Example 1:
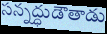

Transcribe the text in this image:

సన్నద్ధుడౌతాడు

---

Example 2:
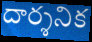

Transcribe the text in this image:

దార్శనిక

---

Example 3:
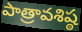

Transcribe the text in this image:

పాత్రావశిష్ఠ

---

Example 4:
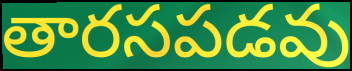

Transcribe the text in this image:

తారసపడవు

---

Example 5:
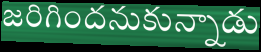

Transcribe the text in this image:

జరిగిందనుకున్నాడు